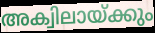
അക്വിലായ്ക്കും